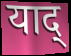
याद्